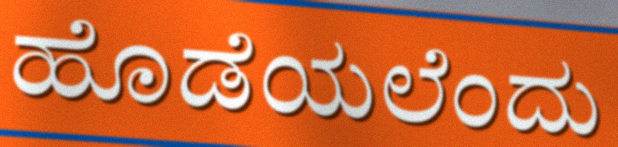
ಹೊಡೆಯಲೆಂದು